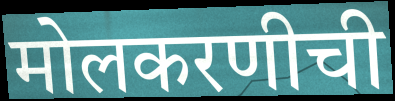
मोलकरणीची